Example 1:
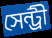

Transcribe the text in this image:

সেন্ট্রী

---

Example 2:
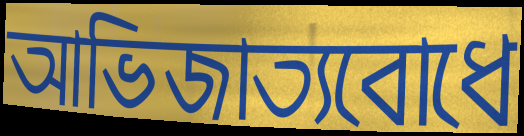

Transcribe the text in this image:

আভিজাত্যবোধে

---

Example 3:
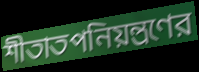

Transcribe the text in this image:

শীতাতপনিয়ন্ত্রণের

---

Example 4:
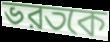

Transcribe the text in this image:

ভরতকে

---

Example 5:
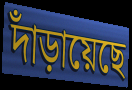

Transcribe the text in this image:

দাঁড়ায়েছে